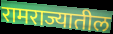
रामराज्यातील